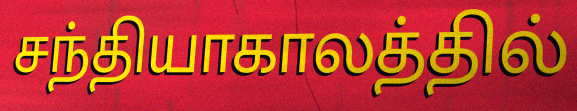
சந்தியாகாலத்தில்